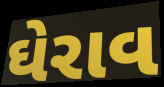
ઘેરાવ